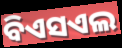
ବିଏସଏଲ